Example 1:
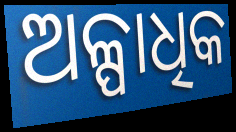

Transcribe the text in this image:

ଅଳ୍ପାଧିକ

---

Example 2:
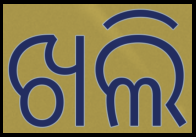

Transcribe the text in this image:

ଖଲି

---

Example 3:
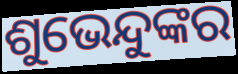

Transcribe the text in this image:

ଶୁଭେନ୍ଦୁଙ୍କର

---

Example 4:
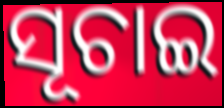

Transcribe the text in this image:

ସୂଚାଇ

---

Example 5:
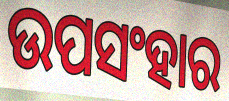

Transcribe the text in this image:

ଉପସଂହାର